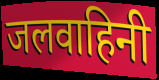
जलवाहिनी